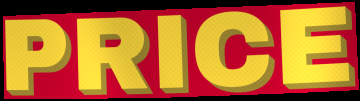
PRICE